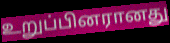
உறுப்பினரானது